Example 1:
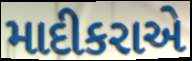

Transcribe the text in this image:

માદીકરાએ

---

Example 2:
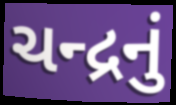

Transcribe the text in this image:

ચન્દ્રનું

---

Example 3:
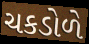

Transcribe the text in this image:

ચકડોળે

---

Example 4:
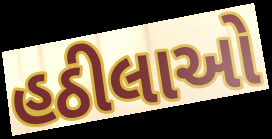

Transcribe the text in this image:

હઠીલાઓ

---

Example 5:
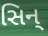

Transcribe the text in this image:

સિન્